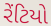
રેંટિયો